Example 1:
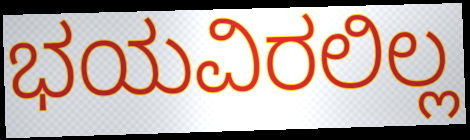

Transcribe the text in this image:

ಭಯವಿರಲಿಲ್ಲ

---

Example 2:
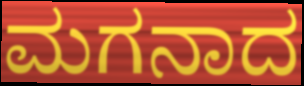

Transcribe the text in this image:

ಮಗನಾದ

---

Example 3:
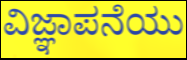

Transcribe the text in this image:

ವಿಜ್ಞಾಪನೆಯು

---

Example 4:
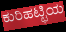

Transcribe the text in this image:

ಕುರಿಹಟ್ಟಿಯ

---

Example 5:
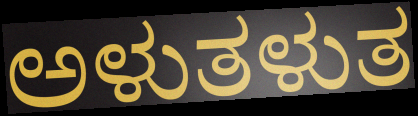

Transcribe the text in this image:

ಅಳುತಳುತ